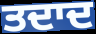
ਤਦਾਦ